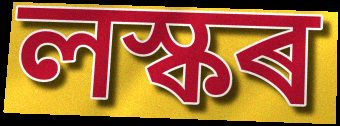
লস্কৰ